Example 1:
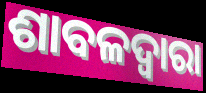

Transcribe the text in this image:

ଶାବଳଦ୍ୱାରା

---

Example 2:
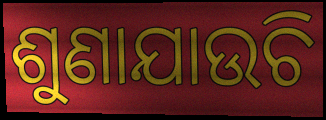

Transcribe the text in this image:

ଶୁଣାଯାଉଚି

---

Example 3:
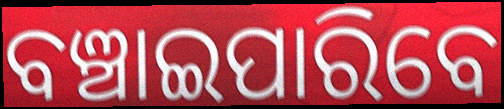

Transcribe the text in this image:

ବଞ୍ଚାଇପାରିବେ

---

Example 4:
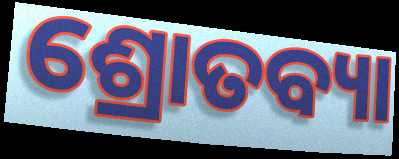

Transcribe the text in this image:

ଶ୍ରୋତବ୍ୟା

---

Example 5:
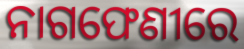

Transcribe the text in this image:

ନାଗଫେଣୀରେ